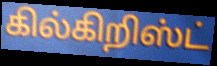
கில்கிறிஸ்ட்